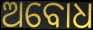
ଅବୋଧ